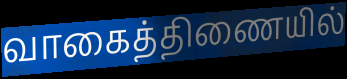
வாகைத்திணையில்